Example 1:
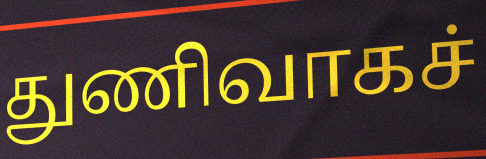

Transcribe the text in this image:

துணிவாகச்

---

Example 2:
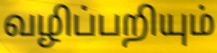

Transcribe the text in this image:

வழிப்பறியும்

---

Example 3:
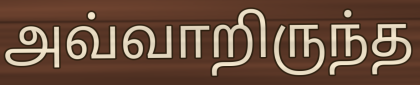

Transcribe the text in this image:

அவ்வாறிருந்த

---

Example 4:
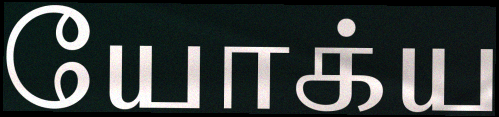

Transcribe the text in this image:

யோக்ய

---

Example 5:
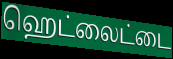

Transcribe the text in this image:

ஹெட்லைட்டை